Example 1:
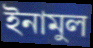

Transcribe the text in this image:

ইনামুল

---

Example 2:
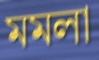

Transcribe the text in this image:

মমলা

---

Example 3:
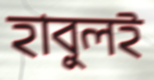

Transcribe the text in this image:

হাবুলই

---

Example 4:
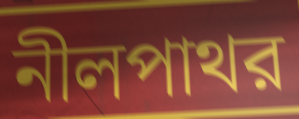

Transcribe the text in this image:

নীলপাথর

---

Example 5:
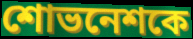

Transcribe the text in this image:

শোভনেশকে